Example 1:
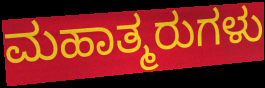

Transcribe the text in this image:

ಮಹಾತ್ಮರುಗಳು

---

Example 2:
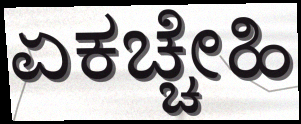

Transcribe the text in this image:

ಏಕಚ್ಚೇಹಿ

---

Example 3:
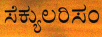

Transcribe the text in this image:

ಸೆಕ್ಯುಲರಿಸಂ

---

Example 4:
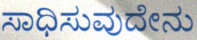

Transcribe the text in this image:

ಸಾಧಿಸುವುದೇನು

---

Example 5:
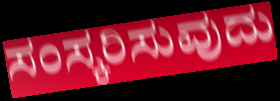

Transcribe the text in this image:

ಸಂಸ್ಕರಿಸುವುದು